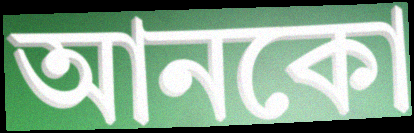
আনকো